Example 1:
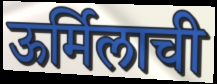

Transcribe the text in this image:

ऊर्मिलाची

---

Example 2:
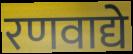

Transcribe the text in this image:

रणवाद्ये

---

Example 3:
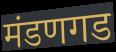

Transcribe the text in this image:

मंडणगड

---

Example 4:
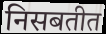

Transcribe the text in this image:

निसबतीत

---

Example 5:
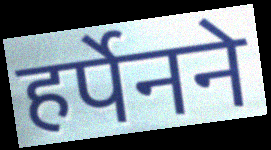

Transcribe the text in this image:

हर्पेनने